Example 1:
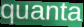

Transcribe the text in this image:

quanta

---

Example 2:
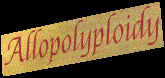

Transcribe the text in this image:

Allopolyploidy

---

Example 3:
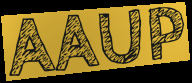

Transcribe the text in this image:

AAUP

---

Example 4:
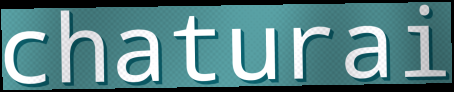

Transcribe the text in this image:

chaturai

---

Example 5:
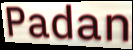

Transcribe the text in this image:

Padan